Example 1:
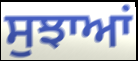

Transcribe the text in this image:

ਸੁਝਾਆਂ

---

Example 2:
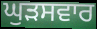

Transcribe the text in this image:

ਘੁੜਸਵਾਰ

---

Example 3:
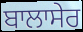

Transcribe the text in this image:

ਬਾਲਾਸੇਰ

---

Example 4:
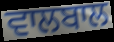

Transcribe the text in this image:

ਵਾਲਬਾਲ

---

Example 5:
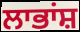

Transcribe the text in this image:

ਲਾਭਾਂਸ਼